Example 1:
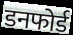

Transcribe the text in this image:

डनफोर्ड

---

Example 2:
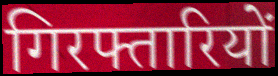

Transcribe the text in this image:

गिरफ्तारियों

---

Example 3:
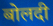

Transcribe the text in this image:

बोलदी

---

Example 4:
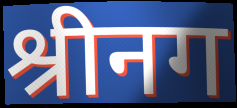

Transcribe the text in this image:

श्रीनग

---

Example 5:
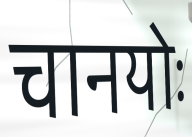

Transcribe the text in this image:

चानयोः